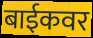
बाईकवर